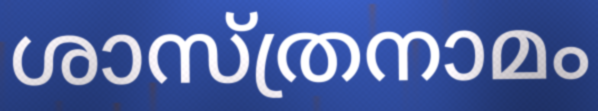
ശാസ്ത്രനാമം